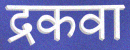
द्रकवा